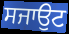
ਸਜਾਉਟ